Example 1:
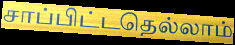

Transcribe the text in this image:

சாப்பிட்டதெல்லாம்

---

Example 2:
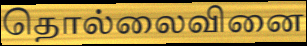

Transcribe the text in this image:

தொல்லைவினை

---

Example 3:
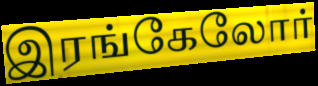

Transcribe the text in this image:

இரங்கேலோர்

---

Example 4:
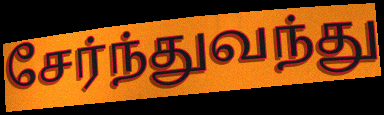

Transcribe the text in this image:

சேர்ந்துவந்து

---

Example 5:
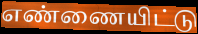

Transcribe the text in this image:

எண்ணையிட்டு